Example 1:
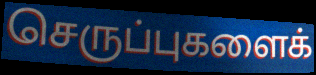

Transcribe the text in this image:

செருப்புகளைக்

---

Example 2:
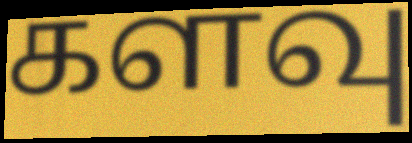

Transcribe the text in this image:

களவு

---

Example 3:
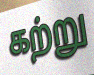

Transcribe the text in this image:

கற்று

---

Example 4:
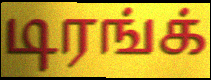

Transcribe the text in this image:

டிரங்க்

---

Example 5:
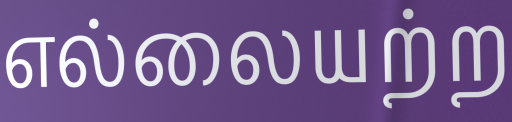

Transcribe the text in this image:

எல்லையற்ற